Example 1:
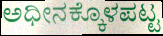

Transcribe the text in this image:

ಅಧೀನಕ್ಕೊಳಪಟ್ಟ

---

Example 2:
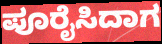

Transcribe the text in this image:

ಪೂರೈಸಿದಾಗ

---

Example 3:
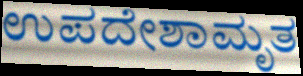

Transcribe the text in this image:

ಉಪದೇಶಾಮೃತ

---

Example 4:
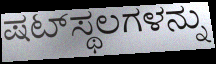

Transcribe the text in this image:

ಷಟ್‌ಸ್ಥಲಗಳನ್ನು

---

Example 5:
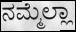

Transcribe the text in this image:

ನಮ್ಮೆಲ್ಲಾ